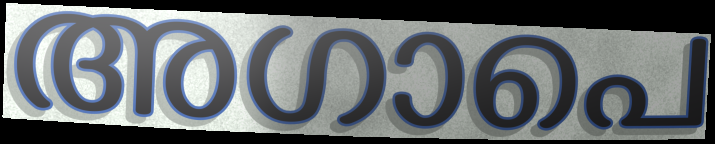
അഗാപെ